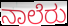
ನಾಲೆರು